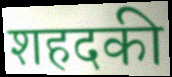
शहदकी